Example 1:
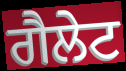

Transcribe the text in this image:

ਗੈਲੇਟ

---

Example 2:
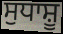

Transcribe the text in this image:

ਸੁਧਾਸ਼ੂ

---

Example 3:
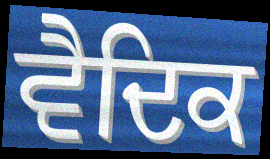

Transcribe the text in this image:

ਵੈਦਿਕ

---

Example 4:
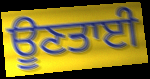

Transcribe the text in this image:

ਊਣਤਾਈ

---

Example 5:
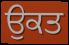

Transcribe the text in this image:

ਉਕਤ